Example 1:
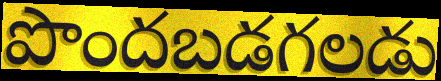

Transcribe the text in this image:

పొందబడగలడు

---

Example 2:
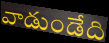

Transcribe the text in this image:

వాడుండేది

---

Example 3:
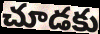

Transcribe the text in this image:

చూడకు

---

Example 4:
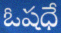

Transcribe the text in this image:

ఓషధే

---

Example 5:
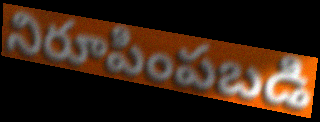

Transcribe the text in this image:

నిరూపింపబడి